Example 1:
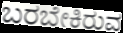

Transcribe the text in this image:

ಬರಬೇಕಿರುವ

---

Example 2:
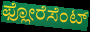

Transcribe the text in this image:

ಫ್ಲೋರೆಸೆಂಟ್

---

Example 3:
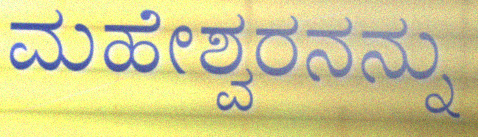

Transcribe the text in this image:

ಮಹೇಶ್ವರನನ್ನು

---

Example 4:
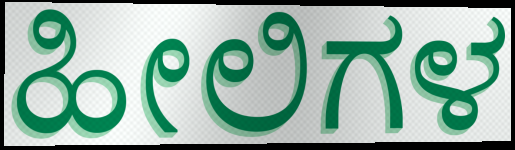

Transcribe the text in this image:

ಹೀಲಿಗಳ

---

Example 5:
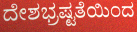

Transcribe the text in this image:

ದೇಶಭ್ರಷ್ಟತೆಯಿಂದ